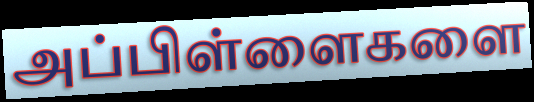
அப்பிள்ளைகளை